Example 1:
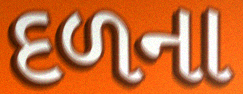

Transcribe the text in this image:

દળના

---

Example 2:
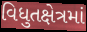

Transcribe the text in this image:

વિધુતક્ષેત્રમાં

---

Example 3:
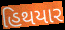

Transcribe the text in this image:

હિથયાર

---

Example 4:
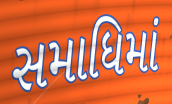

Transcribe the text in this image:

સમાધિમાં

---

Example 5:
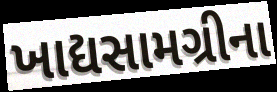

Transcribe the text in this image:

ખાદ્યસામગ્રીના